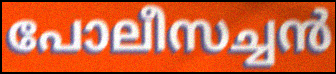
പോലീസച്ചൻ